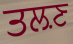
ਤਲ਼ਣ